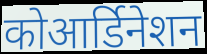
कोआर्डिनेशन